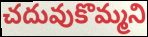
చదువుకొమ్మని